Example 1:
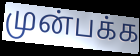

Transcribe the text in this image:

முன்பக்க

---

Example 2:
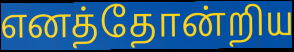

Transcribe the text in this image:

எனத்தோன்றிய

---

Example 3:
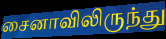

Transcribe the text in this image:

சைனாவிலிருந்து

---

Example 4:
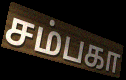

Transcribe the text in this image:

சம்பகா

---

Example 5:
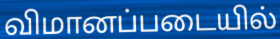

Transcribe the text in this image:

விமானப்படையில்